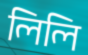
লিলি